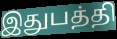
இதுபத்தி